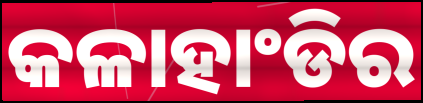
କଳାହାଂଡିର